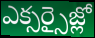
ఎక్సర్సైజ్లో